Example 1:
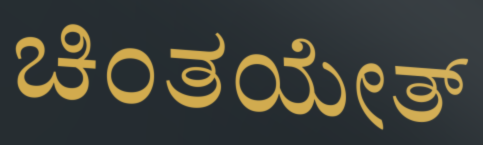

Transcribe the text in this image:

ಚಿಂತಯೇತ್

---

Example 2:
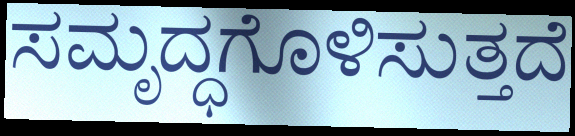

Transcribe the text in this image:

ಸಮೃದ್ಧಗೊಳಿಸುತ್ತದೆ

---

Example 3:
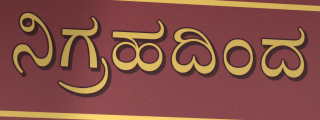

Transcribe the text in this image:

ನಿಗ್ರಹದಿಂದ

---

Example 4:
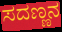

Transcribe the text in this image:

ಸದಣ್ಣನ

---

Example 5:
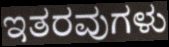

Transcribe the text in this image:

ಇತರವುಗಳು